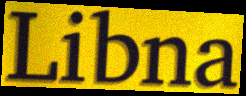
Libna